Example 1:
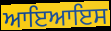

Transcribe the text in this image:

ਆਇਆਇਸ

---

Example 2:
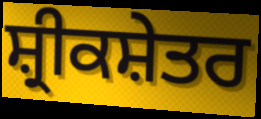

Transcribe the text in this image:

ਸ਼੍ਰੀਕਸ਼ੇਤਰ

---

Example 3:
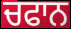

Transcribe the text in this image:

ਚਫਾਨ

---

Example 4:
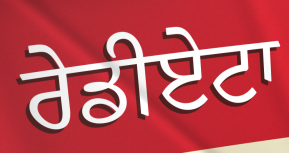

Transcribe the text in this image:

ਰੇਡੀਏਟਾ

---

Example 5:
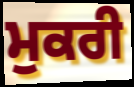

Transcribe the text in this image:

ਮੁਕਰੀ